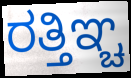
ರತ್ತಿಞ್ಚ